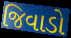
જિવાડો